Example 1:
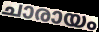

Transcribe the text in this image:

ചാരായം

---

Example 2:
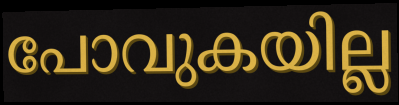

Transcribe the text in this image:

പോവുകയില്ല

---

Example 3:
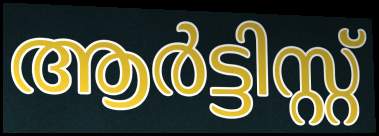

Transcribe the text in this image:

ആർട്ടിസ്റ്റ്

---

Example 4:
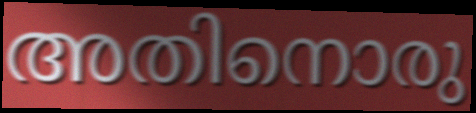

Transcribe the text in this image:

അതിനൊരു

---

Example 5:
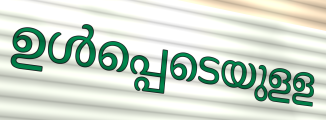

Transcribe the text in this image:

ഉൾപ്പെടെയുളള